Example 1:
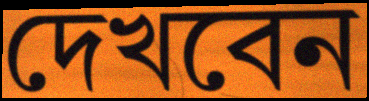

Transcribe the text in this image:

দেখবেন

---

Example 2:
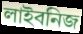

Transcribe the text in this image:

লাইবনিজ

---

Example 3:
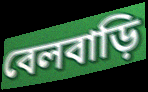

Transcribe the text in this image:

বেলবাড়ি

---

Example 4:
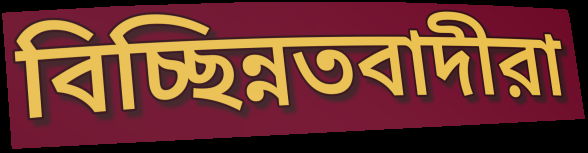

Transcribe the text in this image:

বিচ্ছিন্নতবাদীরা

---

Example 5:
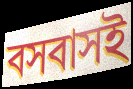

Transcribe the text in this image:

বসবাসই